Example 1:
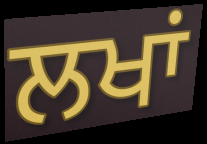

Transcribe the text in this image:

ਲਖਾਂ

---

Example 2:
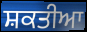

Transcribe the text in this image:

ਸ਼ਕਤੀਆ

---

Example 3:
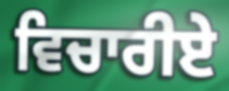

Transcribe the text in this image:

ਵਿਚਾਰੀਏ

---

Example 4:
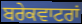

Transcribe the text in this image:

ਬਰੇਕਵਾਟਰਾਂ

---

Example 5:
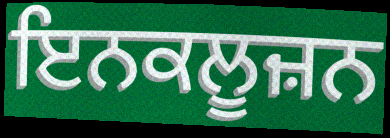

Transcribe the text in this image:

ਇਨਕਲੂਜ਼ਨ